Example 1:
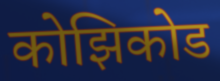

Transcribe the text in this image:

कोझिकोड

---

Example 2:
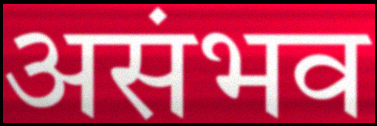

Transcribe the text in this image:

असंभव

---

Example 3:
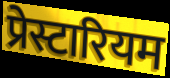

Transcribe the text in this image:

प्रेस्टारियम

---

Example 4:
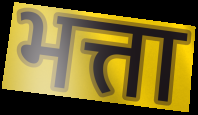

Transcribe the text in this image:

भत्ता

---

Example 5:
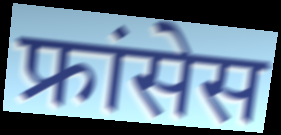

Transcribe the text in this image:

फ्रांसेस